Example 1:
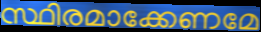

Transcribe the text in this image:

സ്ഥിരമാക്കേണമേ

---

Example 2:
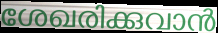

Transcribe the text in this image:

ശേഖരിക്കുവാൻ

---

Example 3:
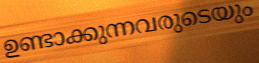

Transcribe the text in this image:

ഉണ്ടാക്കുന്നവരുടെയും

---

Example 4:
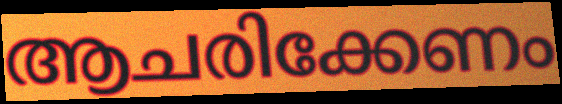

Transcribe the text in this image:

ആചരിക്കേണം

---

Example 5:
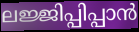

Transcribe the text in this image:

ലജ്ജിപ്പിപ്പാൻ